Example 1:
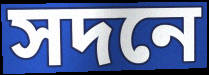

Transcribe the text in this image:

সদনে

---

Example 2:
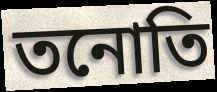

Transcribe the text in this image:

তনোতি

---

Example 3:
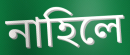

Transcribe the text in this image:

নাহিলে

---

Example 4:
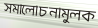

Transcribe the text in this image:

সমালোচনামুলক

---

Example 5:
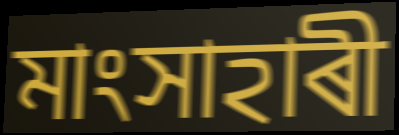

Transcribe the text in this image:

মাংসাহাৰী